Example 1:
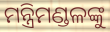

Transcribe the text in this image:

ମନ୍ତ୍ରିମଣ୍ଡଳଙ୍କୁ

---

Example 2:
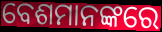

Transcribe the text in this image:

ବେଶମାନଙ୍କରେ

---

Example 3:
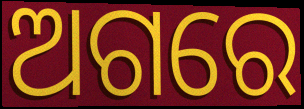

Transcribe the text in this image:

ଅଗରେ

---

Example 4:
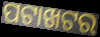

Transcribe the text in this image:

ପଟାଖଟର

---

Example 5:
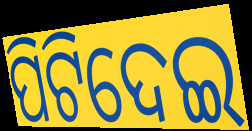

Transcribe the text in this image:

ପିଟିଦେଇ